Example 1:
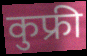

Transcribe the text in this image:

कुफ्री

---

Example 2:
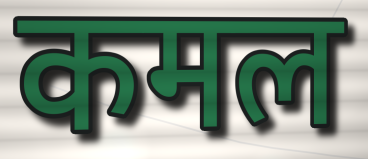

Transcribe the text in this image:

कमल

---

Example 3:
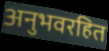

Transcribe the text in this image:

अनुभवरहित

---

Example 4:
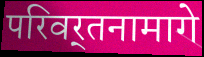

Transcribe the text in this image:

परिवर्तनामागे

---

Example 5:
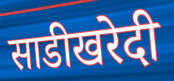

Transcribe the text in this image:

साडीखरेदी